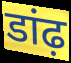
डांढ़